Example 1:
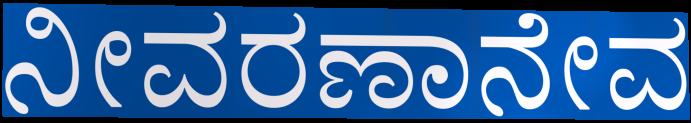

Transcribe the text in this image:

ನೀವರಣಾನೇವ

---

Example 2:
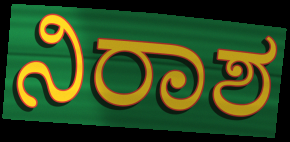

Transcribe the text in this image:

ನಿರಾಶ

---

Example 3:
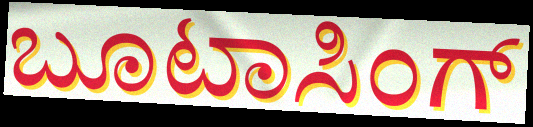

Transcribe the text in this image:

ಬೂಟಾಸಿಂಗ್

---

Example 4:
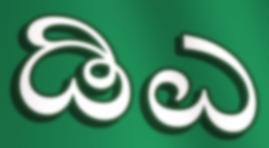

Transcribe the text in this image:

ಡಿಎ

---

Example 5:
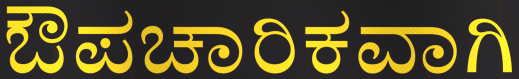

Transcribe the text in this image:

ಔಪಚಾರಿಕವಾಗಿ